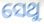
ସେଥୁ